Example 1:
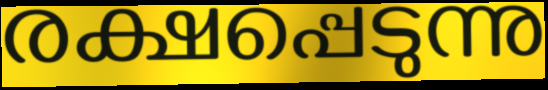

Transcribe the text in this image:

രക്ഷപ്പെടുന്നു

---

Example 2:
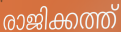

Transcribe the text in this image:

രാജിക്കത്ത്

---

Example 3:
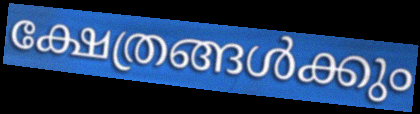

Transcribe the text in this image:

ക്ഷേത്രങ്ങൾക്കും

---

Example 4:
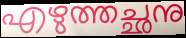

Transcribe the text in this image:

എഴുത്തച്ഛനു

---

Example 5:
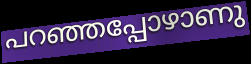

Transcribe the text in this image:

പറഞ്ഞപ്പോഴാണു